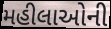
મહીલાઓની